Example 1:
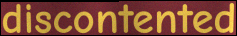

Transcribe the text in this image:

discontented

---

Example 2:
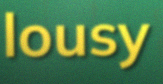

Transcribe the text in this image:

lousy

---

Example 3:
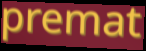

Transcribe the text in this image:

premat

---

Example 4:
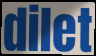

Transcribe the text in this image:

dilet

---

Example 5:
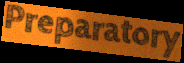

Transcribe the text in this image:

Preparatory